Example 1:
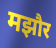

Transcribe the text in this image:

मझौर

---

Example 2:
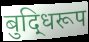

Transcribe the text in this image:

बुद्धिरूप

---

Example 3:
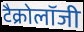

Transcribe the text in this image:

टैक्रोलॉजी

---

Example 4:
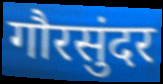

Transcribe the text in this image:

गौरसुंदर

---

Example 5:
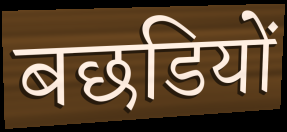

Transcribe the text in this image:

बछडियों